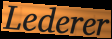
Lederer